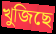
খুজিছে